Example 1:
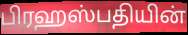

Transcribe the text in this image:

பிரஹஸ்பதியின்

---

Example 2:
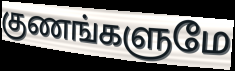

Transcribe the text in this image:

குணங்களுமே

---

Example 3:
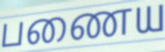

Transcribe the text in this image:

பணைய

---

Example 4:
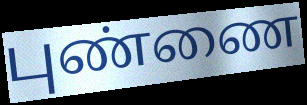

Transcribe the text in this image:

புண்ணை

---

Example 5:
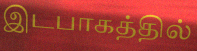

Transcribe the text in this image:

இடபாகத்தில்